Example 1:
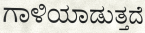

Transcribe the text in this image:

ಗಾಳಿಯಾಡುತ್ತದೆ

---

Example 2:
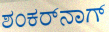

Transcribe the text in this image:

ಶಂಕರ್‌ನಾಗ್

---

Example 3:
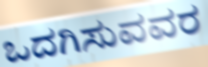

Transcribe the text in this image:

ಒದಗಿಸುವವರ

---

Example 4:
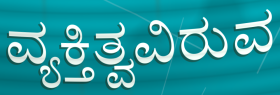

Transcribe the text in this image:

ವ್ಯಕ್ತಿತ್ವವಿರುವ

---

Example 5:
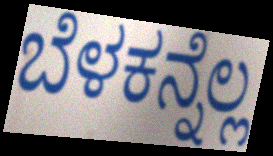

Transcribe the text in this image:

ಬೆಳಕನ್ನೆಲ್ಲ